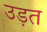
उड़त